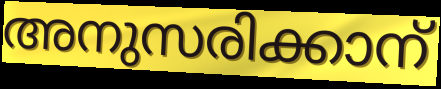
അനുസരിക്കാന്